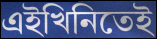
এইখিনিতেই